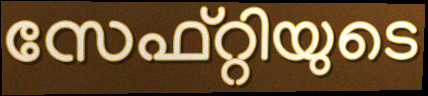
സേഫ്റ്റിയുടെ